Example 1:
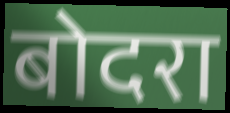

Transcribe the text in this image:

बोदरा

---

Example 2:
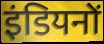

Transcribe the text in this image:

इंडियनों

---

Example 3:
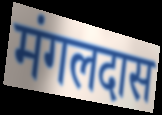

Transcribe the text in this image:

मंगलदास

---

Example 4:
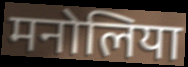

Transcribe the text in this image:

मनोलिया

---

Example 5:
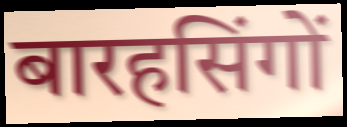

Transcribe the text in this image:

बारहसिंगों